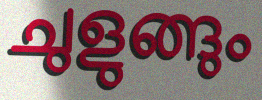
ചുളുങ്ങും